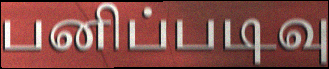
பனிப்படிவு